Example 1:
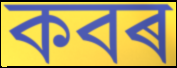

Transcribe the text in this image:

কবৰ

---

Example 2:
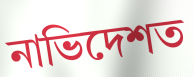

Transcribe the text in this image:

নাভিদেশত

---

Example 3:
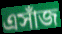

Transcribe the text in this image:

এসাঁজ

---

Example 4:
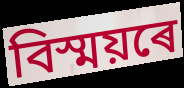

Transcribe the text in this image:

বিস্ময়ৰে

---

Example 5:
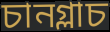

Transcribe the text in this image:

চানগ্লাচ